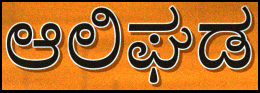
ಆಲಿಘಡ